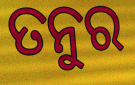
ତନୁର